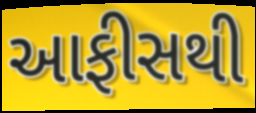
આફીસથી